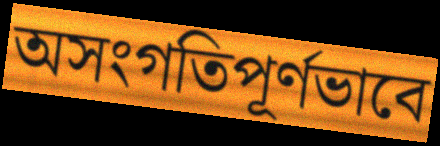
অসংগতিপূর্ণভাবে